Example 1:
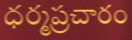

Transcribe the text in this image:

ధర్మప్రచారం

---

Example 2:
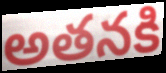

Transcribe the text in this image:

అతనకి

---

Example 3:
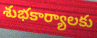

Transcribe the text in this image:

శుభకార్యాలకు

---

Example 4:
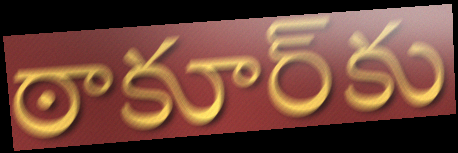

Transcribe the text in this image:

ఠాకూర్‌కు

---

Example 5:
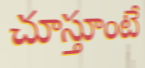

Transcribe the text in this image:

చూస్తూంటే